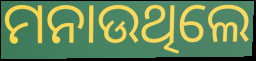
ମନାଉଥିଲେ